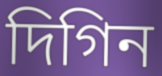
দিগিন